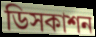
ডিসকাশন